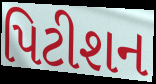
પિટીશન